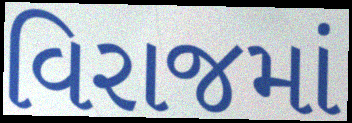
વિરાજમાં